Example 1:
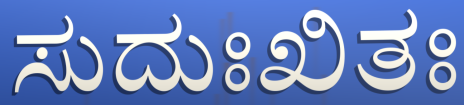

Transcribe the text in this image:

ಸುದುಃಖಿತಃ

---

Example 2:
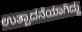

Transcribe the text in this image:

ಉತ್ಪಾದನೆಯಾಗಿದ್ದು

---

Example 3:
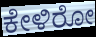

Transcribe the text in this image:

ಕೇಳಿರೋ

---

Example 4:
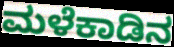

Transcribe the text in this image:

ಮಳೆಕಾಡಿನ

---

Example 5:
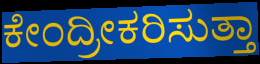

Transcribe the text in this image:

ಕೇಂದ್ರೀಕರಿಸುತ್ತಾ